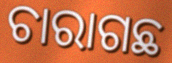
ଚାରାଗଛ